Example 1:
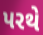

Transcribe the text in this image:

પરથે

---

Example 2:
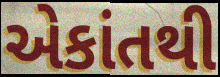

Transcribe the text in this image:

એકાંતથી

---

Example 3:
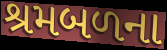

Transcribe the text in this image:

શ્રમબળના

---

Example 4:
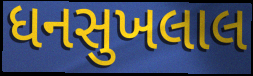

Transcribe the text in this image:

ધનસુખલાલ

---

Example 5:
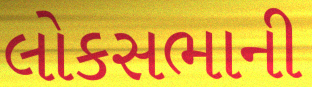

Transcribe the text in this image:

લોકસભાની